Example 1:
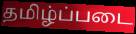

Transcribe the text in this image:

தமிழ்ப்படை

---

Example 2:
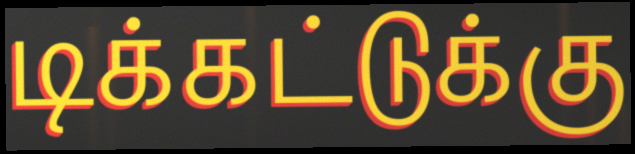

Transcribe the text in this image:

டிக்கட்டுக்கு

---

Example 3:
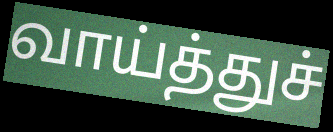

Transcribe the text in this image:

வாய்த்துச்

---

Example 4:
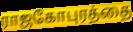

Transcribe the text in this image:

ராஜகோபுரத்தை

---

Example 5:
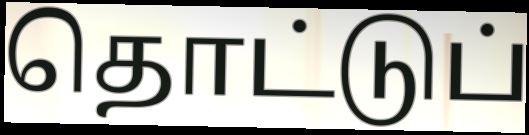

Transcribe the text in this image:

தொட்டுப்